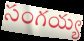
సంగయ్య